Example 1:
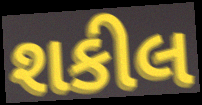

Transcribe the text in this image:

શકીલ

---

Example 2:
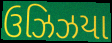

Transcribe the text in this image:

ઉઝિઝયા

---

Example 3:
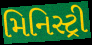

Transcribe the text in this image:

મિનિસ્ટ્રી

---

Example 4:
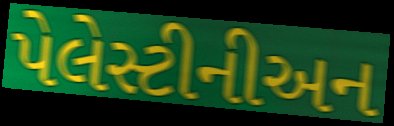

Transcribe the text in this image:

પેલેસ્ટીનીઅન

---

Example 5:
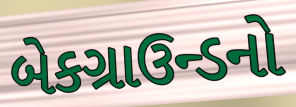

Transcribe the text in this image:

બેકગ્રાઉન્ડનો